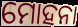
ମୋହନା